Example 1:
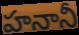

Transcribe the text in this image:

హనానీ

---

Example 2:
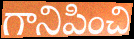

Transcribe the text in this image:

గానిపించి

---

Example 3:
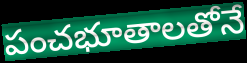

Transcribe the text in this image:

పంచభూతాలతోనే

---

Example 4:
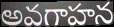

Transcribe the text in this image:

అవగాహన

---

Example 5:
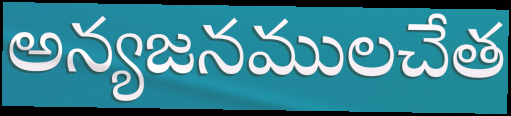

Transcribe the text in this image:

అన్యజనములచేత